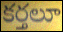
కర్తలూ